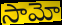
సామో